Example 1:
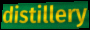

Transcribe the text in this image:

distillery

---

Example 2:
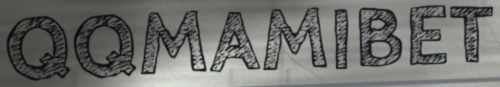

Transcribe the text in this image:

QQMAMIBET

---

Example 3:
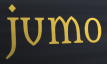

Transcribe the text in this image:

jumo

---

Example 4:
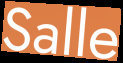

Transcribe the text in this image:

Salle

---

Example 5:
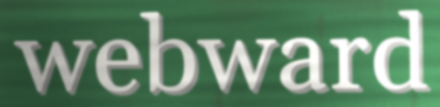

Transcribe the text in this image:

webward